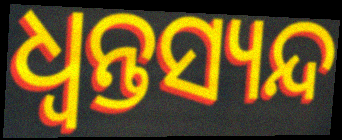
ଧ୍ଵନ୍ତସ୍ୟନ୍ଦ